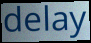
delay